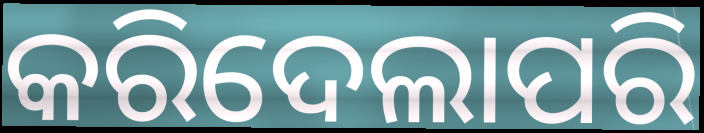
କରିଦେଲାପରି